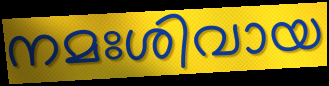
നമഃശിവായ